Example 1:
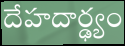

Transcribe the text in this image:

దేహదార్ఢ్యం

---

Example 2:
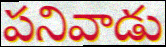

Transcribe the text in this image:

పనివాడు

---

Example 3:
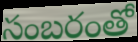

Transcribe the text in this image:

సంబరంతో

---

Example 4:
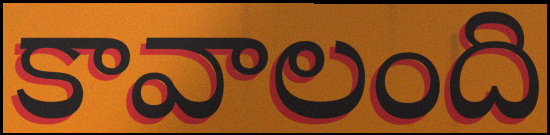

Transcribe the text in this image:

కావాలంది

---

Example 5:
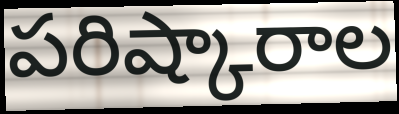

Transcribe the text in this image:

పరిష్కారాల